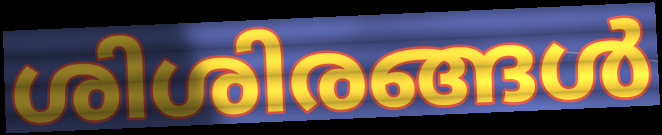
ശിശിരങ്ങൾ